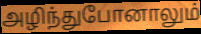
அழிந்துபோனாலும்